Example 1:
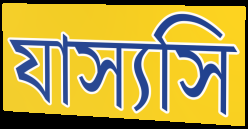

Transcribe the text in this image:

যাস্যসি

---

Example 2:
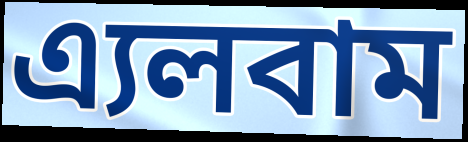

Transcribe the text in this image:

এ্যলবাম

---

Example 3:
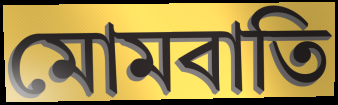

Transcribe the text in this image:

মোমবাতি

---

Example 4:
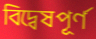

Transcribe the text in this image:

বিদ্বেষপূর্ণ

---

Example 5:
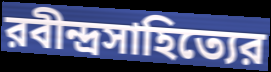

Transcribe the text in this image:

রবীন্দ্রসাহিত্যের